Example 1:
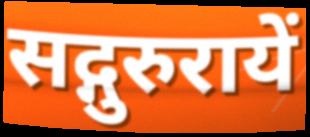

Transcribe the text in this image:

सद्गुरुरायें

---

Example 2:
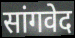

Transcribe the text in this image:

सांगवेद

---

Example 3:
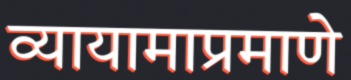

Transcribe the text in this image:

व्यायामाप्रमाणे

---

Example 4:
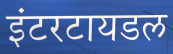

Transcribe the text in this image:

इंटरटायडल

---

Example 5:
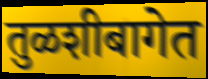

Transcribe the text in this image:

तुळशीबागेत